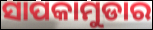
ସାପକାମୁଡାର